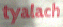
tyalach